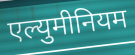
एल्युमीनियम